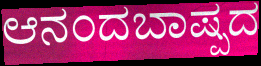
ಆನಂದಬಾಷ್ಪದ